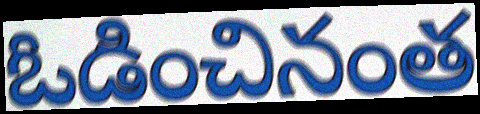
ఓడించినంత